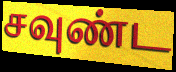
சவுண்ட